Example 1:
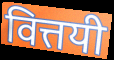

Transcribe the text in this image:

वित्तयी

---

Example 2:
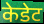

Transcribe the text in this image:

केडेट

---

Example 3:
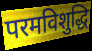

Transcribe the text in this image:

परमविशुद्धि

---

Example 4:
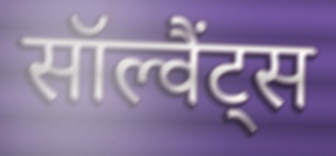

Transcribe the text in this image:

सॉल्वैंट्स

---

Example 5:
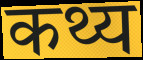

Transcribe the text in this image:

कथ्य